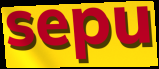
sepu